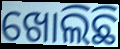
ଖୋଲିଛି